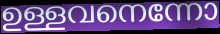
ഉള്ളവനെന്നോ